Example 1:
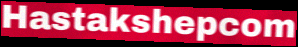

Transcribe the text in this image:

Hastakshepcom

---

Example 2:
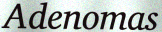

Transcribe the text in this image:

Adenomas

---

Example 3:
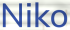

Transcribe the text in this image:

Niko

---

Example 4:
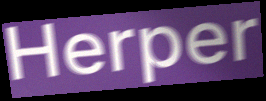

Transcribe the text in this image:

Herper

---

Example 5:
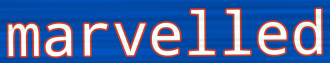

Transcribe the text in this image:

marvelled